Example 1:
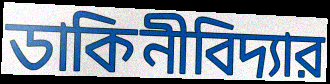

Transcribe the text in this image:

ডাকিনীবিদ্যার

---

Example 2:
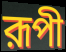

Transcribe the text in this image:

রূপী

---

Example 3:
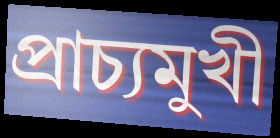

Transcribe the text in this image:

প্রাচ্যমুখী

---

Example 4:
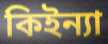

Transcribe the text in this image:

কিইন্যা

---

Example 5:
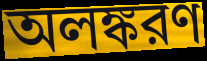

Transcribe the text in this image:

অলঙ্করণ